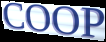
COOP